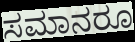
ಸಮಾನರೂ